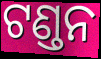
ଟଣ୍ଡନ